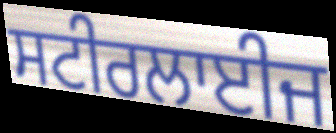
ਸਟੀਰਲਾਈਜ